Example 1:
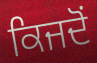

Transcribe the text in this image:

ਕਿਜਦੋਂ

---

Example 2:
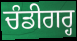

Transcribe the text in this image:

ਚੰਡੀਗਰ੍ਹ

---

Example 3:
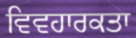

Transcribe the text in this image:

ਵਿਵਹਾਰਕਤਾ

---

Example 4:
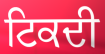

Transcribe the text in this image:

ਟਿਕਦੀ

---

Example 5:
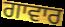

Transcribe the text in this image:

ਗਾਵਾਰ